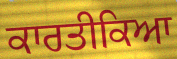
ਕਾਰਤੀਕਿਆ